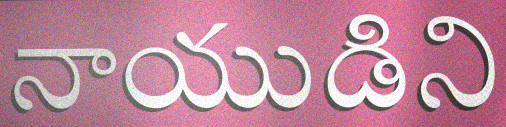
నాయుడిని